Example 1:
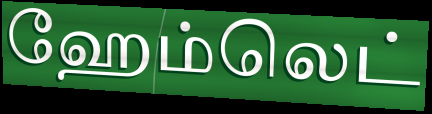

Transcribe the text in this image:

ஹேம்லெட்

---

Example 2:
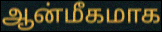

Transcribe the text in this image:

ஆன்மீகமாக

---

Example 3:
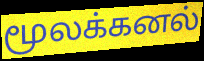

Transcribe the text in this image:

மூலக்கனல்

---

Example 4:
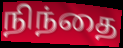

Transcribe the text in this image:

நிந்தை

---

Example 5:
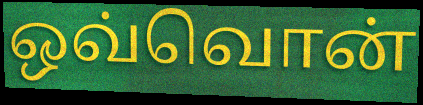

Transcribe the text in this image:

ஒவ்வொன்